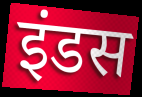
इंडस